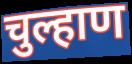
चुल्हाण